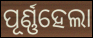
ପୂର୍ଣ୍ଣହେଲା